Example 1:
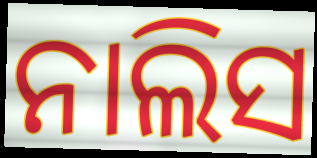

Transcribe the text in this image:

ନାଲିସ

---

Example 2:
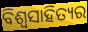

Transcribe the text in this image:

ବିଶ୍ୱସାହିତ୍ୟର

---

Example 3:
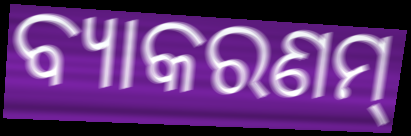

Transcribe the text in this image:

ବ୍ୟାକରଣମ୍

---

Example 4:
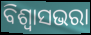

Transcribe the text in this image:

ବିଶ୍ୱାସଭରା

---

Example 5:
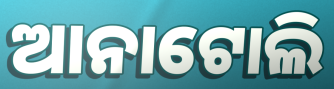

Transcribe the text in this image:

ଆନାଟୋଲି